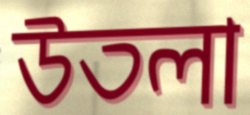
উতলা